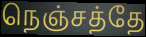
நெஞ்சத்தே